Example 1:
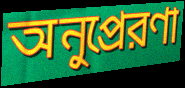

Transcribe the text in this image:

অনুপ্রেরণা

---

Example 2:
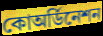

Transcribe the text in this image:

কোঅর্ডিনেশন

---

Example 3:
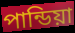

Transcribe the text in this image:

পান্ডিয়া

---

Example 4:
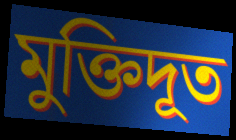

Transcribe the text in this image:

মুক্তিদূত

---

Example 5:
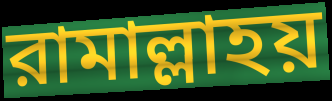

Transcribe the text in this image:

রামাল্লাহয়